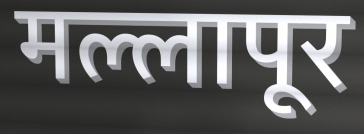
मल्लापूर